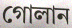
গোলান